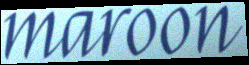
maroon